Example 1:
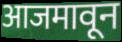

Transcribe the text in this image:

आजमावून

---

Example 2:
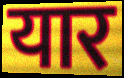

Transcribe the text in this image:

यार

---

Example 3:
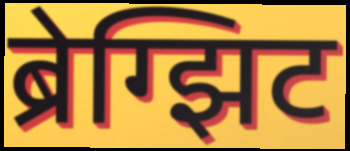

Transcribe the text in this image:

ब्रेग्झिट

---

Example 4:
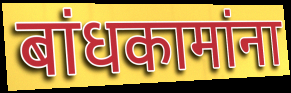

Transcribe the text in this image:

बांधकामांना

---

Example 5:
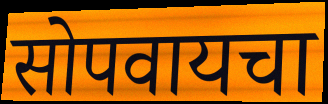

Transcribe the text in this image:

सोपवायचा